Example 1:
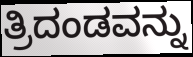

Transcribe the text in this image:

ತ್ರಿದಂಡವನ್ನು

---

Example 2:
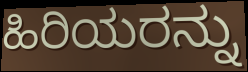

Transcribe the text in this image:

ಹಿರಿಯರನ್ನು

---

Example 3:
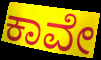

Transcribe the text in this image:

ಕಾವೇ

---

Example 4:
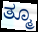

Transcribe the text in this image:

ತ್ಮೂ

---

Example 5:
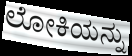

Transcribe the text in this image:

ಲೋಕಿಯನ್ನು